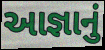
આજ્ઞાનું